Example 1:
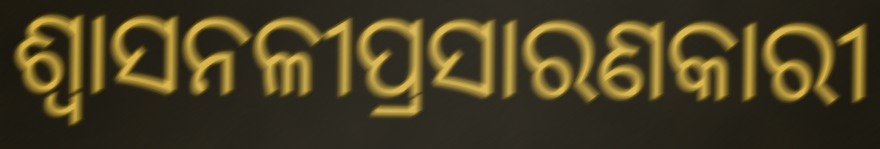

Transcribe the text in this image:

ଶ୍ୱାସନଳୀପ୍ରସାରଣକାରୀ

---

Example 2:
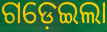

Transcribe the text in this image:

ଗଡ଼େଇଲା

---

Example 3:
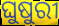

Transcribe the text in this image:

ଘୁଷୁରୀ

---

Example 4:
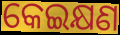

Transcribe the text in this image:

କେଇକ୍ଷଣ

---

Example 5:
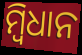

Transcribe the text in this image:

ମ୍ବିଧାନ